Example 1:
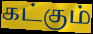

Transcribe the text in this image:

கட்கும்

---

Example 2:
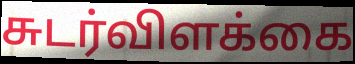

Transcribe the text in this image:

சுடர்விளக்கை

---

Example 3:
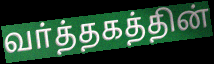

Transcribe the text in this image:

வர்த்தகத்தின்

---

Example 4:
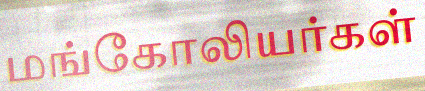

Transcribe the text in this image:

மங்கோலியர்கள்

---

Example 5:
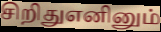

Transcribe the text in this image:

சிறிதுஎனினும்